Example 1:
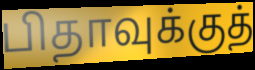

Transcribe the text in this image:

பிதாவுக்குத்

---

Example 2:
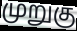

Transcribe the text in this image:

முறுகு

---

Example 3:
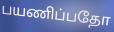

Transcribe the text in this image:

பயணிப்பதோ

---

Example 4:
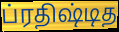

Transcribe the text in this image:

ப்ரதிஷ்டித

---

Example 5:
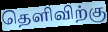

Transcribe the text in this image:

தெளிவிற்கு